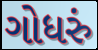
ગોધરું